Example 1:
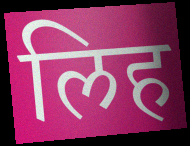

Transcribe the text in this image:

लिह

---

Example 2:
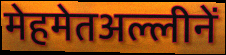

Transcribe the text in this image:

मेहमेतअल्लीनें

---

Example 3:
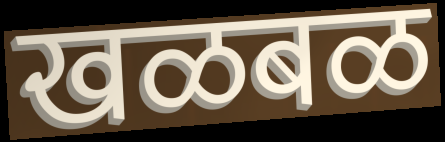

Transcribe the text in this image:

खळबळ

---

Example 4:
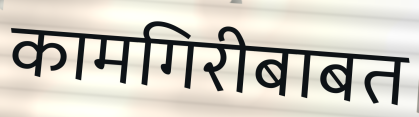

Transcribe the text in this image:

कामगिरीबाबत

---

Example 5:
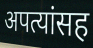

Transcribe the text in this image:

अपत्यांसह